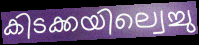
കിടക്കയില്വെച്ചു